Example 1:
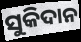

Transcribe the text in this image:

ସୁକିଦାନ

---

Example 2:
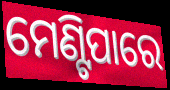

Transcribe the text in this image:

ମେଣ୍ଟିପାରେ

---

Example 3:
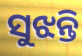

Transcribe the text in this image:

ସୁଝନ୍ତି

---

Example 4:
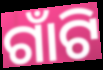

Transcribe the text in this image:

ଗାଁଟି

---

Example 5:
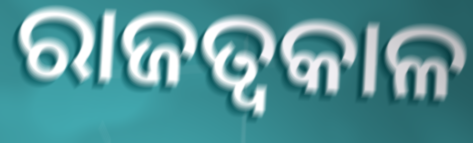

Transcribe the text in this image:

ରାଜତ୍ଵକାଳ